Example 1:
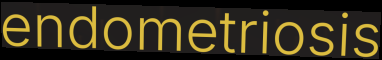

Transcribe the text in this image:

endometriosis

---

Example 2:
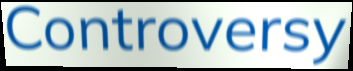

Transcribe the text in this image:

Controversy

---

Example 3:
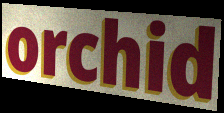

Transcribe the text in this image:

orchid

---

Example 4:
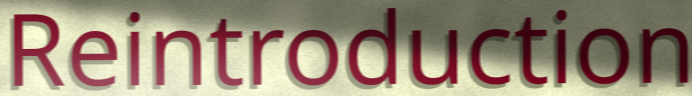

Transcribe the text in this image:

Reintroduction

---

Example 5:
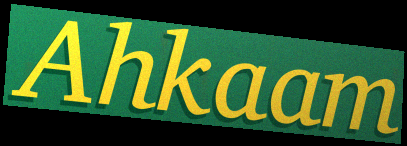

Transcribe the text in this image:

Ahkaam